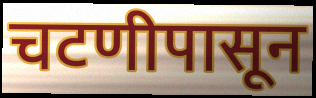
चटणीपासून